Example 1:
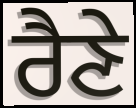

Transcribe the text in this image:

ਰੈਣੇ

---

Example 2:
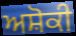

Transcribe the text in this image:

ਅਸ਼ੋਕੀ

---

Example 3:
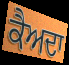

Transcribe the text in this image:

ਕੈਅਦਾ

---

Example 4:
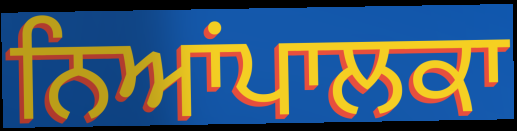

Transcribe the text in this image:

ਨਿਆਂਪਾਲਕਾ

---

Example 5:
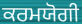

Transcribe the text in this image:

ਕਰਮਯੋਗੀ